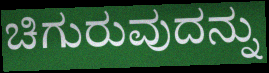
ಚಿಗುರುವುದನ್ನು